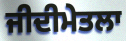
ਜੀਦੀਮੇਤਲਾ